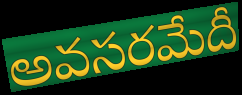
అవసరమేదీ